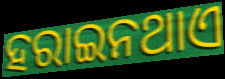
ହରାଇନଥାଏ